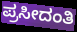
ಪ್ರಸೀದಂತಿ